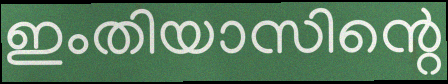
ഇംതിയാസിന്റെ